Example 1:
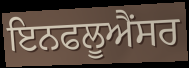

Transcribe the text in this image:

ਇਨਫਲੂਐਂਸਰ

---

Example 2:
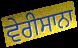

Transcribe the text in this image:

ਵੇਰੀਸਾਨਾ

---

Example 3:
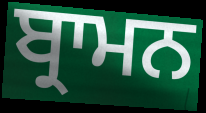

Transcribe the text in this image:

ਬ੍ਰਾਮਨ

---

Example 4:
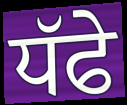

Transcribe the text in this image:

ਧੱਫੇ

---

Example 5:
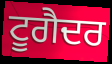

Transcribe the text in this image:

ਟੂਗੈਦਰ